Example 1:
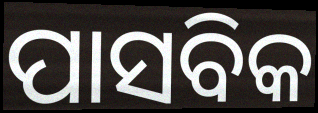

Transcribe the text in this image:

ପାସବିକ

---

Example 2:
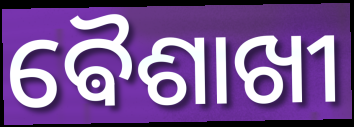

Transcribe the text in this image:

ଵୈଶାଖୀ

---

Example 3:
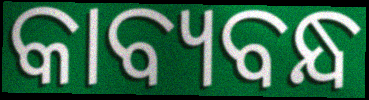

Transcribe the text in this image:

କାବ୍ୟବନ୍ଧ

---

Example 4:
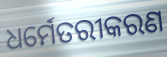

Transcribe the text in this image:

ଧର୍ମେତରୀକରଣ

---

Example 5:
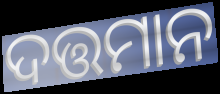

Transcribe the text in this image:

ଦତ୍ତମାନ